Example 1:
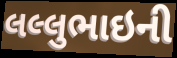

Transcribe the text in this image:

લલ્લુભાઇની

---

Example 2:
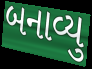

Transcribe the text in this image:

બનાવ્યુ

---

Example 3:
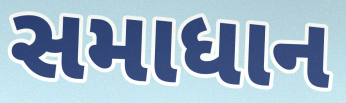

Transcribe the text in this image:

સમાધાન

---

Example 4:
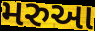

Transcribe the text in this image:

મરુઆ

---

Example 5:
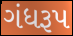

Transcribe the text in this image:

ગંધરૂપ